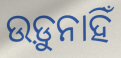
ଉଡ଼ୁନାହିଁ